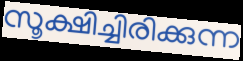
സൂക്ഷിച്ചിരിക്കുന്ന